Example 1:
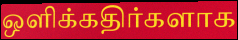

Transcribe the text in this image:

ஒளிக்கதிர்களாக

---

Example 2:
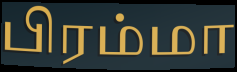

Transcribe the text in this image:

பிரம்மா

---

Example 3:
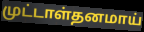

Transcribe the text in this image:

முட்டாள்தனமாய்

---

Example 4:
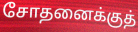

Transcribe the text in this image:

சோதனைக்குத்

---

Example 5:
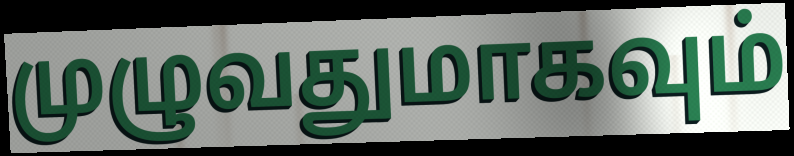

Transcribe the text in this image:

முழுவதுமாகவும்